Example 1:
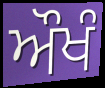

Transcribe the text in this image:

ਔਖੰ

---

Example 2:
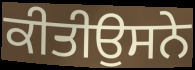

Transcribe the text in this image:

ਕੀਤੀਉਸਨੇ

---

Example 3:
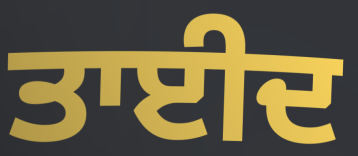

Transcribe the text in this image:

ਤਾਈਦ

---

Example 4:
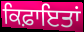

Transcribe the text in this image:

ਕਿਫ਼ਾਇਤਾਂ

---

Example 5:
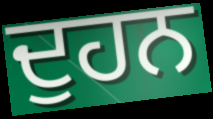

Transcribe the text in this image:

ਦੁਹਨ